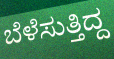
ಬೆಳೆಸುತ್ತಿದ್ದ